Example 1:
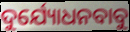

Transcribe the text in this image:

ଦୁର୍ଯ୍ୟୋଧନବାବୁ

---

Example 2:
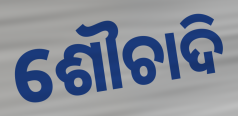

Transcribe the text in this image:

ଶୌଚାଦି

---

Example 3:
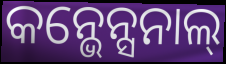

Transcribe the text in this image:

କନ୍ଭେନ୍ସନାଲ୍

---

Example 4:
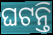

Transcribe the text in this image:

ଘଟନ୍ତି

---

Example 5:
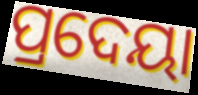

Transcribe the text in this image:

ପ୍ରଦେୟା